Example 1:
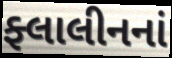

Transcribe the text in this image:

ફ્લાલીનનાં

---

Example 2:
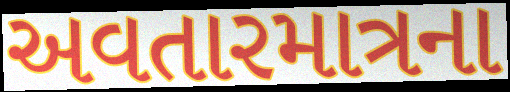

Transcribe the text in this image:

અવતારમાત્રના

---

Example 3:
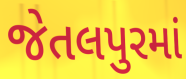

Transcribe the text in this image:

જેતલપુરમાં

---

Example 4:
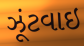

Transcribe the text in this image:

ઝૂંટવાઇ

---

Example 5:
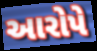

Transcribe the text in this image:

આરોપે